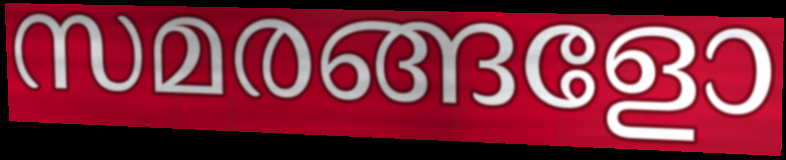
സമരങ്ങളോ